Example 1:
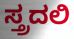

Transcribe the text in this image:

ಸ್ತ್ರದಲಿ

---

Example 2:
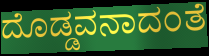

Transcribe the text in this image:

ದೊಡ್ಡವನಾದಂತೆ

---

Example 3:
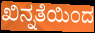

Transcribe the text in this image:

ಖಿನ್ನತೆಯಿಂದ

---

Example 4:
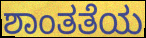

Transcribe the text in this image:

ಶಾಂತತೆಯ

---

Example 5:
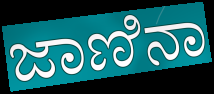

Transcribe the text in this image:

ಜಾಣಿನಾ